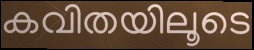
കവിതയിലൂടെ